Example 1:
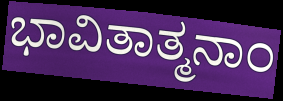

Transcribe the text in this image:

ಭಾವಿತಾತ್ಮನಾಂ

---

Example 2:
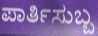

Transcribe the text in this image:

ಪಾರ್ತಿಸುಬ್ಬ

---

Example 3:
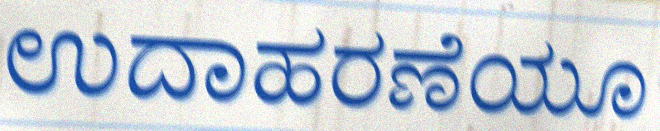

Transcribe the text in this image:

ಉದಾಹರಣೆಯೂ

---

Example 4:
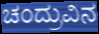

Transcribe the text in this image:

ಚಂದ್ರುವಿನ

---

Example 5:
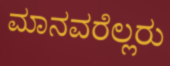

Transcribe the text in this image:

ಮಾನವರೆಲ್ಲರು